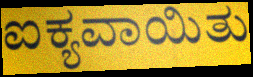
ಐಕ್ಯವಾಯಿತು